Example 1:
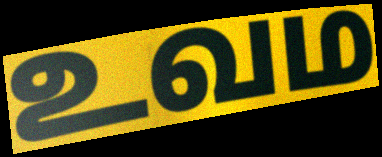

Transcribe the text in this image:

உவம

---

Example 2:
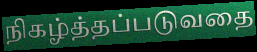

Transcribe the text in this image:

நிகழ்த்தப்படுவதை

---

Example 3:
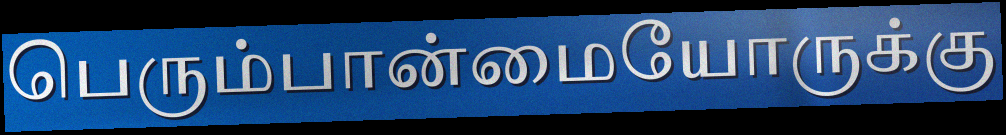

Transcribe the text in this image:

பெரும்பான்மையோருக்கு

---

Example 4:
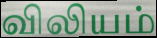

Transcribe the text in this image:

விலியம்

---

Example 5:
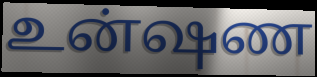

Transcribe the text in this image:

உன்ஷண